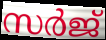
സർജ്